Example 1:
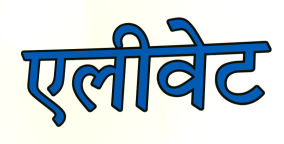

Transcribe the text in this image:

एलीवेट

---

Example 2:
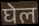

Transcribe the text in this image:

घेल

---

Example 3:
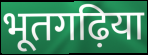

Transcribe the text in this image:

भूतगढ़िया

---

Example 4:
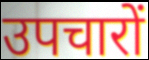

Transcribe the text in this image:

उपचारों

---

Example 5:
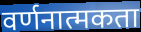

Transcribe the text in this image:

वर्णनात्मकता